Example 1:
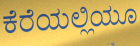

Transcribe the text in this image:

ಕೆರೆಯಲ್ಲಿಯೂ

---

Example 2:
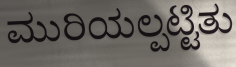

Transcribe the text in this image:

ಮುರಿಯಲ್ಪಟ್ಟಿತು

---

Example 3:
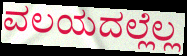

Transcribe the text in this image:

ವಲಯದಲ್ಲೆಲ್ಲ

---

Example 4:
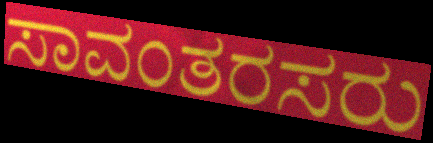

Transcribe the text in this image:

ಸಾವಂತರಸರು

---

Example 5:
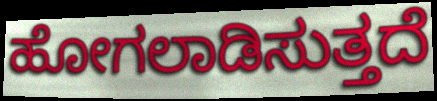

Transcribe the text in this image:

ಹೋಗಲಾಡಿಸುತ್ತದೆ